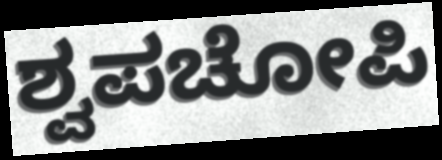
ಶ್ವಪಚೋಪಿ